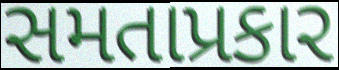
સમતાપ્રકાર